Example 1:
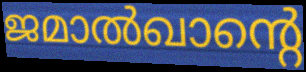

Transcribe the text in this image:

ജമാൽഖാന്റെ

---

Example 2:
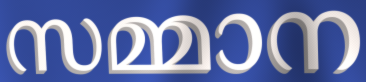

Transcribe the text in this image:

സമ്മാന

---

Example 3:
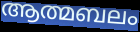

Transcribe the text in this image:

ആത്മബലം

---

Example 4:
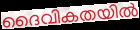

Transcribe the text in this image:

ദൈവികതയിൽ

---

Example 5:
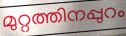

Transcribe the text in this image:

മുറ്റത്തിനപ്പുറം